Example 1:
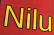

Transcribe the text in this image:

Nilu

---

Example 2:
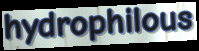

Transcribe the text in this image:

hydrophilous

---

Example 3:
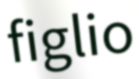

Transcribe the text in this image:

figlio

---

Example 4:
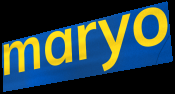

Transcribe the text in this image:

maryo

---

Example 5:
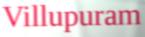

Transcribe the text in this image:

Villupuram